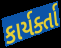
કાર્યર્ક્તા